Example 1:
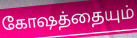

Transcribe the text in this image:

கோஷத்தையும்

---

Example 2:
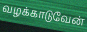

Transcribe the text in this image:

வழக்காடுவேன்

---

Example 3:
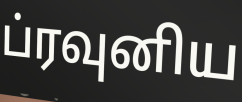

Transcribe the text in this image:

ப்ரவுனிய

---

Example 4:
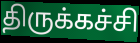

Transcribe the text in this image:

திருக்கச்சி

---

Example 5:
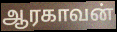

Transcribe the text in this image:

ஆரகாவன்